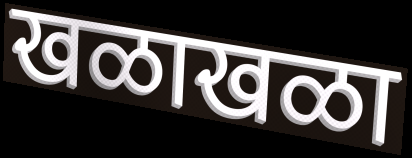
खळाखळा